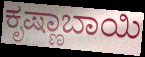
ಕೃಷ್ಣಾಬಾಯಿ